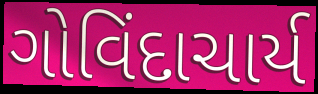
ગોવિંદાચાર્ય